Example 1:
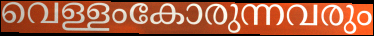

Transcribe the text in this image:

വെള്ളംകോരുന്നവരും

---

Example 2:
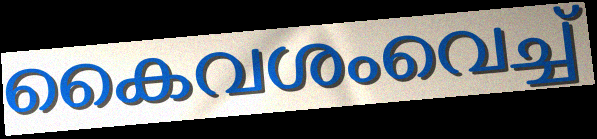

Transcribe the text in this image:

കൈവശംവെച്ച്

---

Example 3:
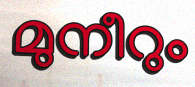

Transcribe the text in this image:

മുനീറും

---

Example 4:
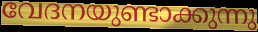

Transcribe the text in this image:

വേദനയുണ്ടാക്കുന്നു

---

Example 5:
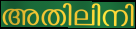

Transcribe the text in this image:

അതിലിനി